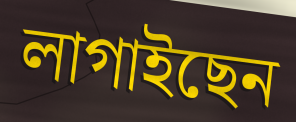
লাগাইছেন